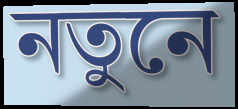
নতুনে